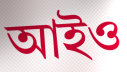
আইও